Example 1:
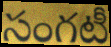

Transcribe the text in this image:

సంగటీ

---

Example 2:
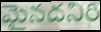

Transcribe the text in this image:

మైనదనిరి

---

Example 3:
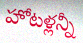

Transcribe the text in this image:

హోటళ్లన్నీ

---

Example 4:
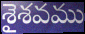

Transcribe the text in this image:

శైశవము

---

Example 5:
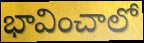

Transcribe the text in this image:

భావించాలో